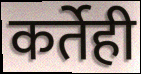
कर्तेही